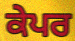
ਕੇਪਰ